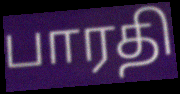
பாரதி